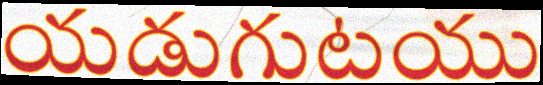
యడుగుటయు